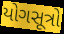
યોગસૂત્રો